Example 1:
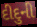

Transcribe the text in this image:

દીદુની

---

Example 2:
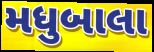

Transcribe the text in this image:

મધુબાલા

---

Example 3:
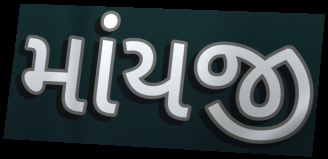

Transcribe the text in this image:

માંયજી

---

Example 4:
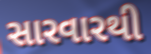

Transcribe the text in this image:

સારવારથી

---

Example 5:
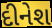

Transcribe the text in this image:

દીનેશ